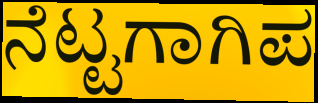
ನೆಟ್ಟಗಾಗಿಪ